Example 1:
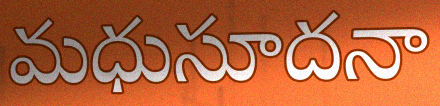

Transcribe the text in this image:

మధుసూదనా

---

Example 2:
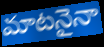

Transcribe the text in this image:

మాటనైనా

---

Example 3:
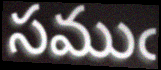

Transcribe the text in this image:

సముఁ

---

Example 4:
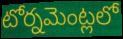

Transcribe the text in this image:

టోర్నమెంట్లలో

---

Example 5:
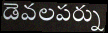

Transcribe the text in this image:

డెవలపర్ను